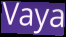
Vaya